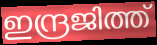
ഇന്ദ്രജിത്ത്